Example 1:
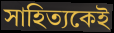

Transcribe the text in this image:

সাহিত্য়কেই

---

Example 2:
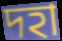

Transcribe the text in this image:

দহা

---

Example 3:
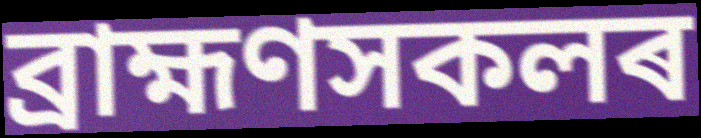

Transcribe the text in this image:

ব্ৰাহ্মণসকলৰ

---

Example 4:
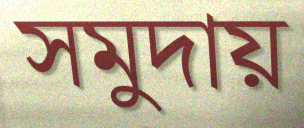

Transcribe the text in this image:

সমুদায়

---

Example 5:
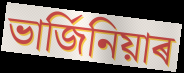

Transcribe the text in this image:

ভাৰ্জিনিয়াৰ